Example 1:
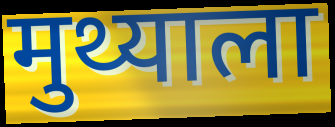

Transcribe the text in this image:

मुथ्याला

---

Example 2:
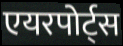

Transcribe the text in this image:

एयरपोर्ट्स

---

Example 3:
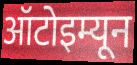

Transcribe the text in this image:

ऑटोइम्‍यून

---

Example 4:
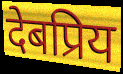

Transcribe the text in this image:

देबप्रिय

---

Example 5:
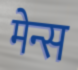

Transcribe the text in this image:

मेन्स